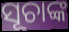
ସୂଚାଙ୍କ